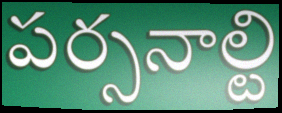
పర్సనాల్టి